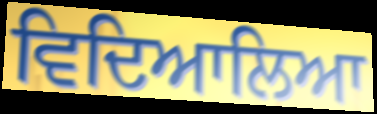
ਵਿਦਿਆਲਿਆ